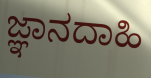
ಜ್ಞಾನದಾಹಿ